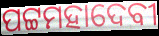
ପଟ୍ଟମହାଦେବୀ